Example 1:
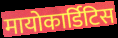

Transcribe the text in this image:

मायोकार्डिटिस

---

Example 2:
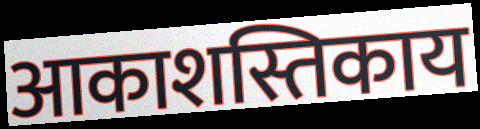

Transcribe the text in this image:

आकाशस्तिकाय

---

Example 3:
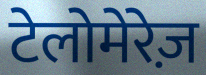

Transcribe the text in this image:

टेलोमेरेज़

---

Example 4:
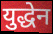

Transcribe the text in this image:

युद्धेन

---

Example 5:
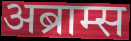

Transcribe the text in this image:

अब्राम्स